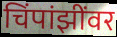
चिंपांझींवर